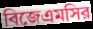
বিজেএমসির